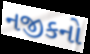
નજીકનો